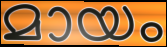
മായം